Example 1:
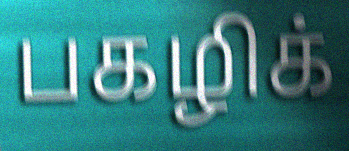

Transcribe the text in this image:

பகழிக்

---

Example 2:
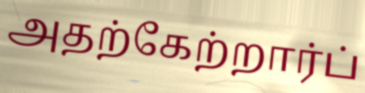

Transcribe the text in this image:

அதற்கேற்றார்ப்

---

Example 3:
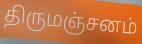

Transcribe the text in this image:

திருமஞ்சனம்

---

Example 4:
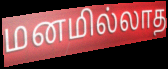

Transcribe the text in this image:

மனமில்லாத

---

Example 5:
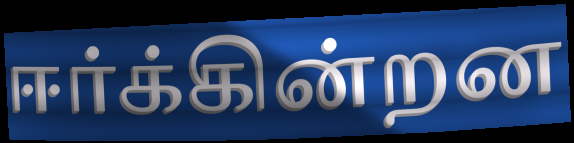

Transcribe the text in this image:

ஈர்க்கின்றன